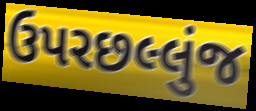
ઉપરછલ્લુંજ